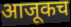
आजूकच